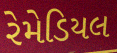
રેમેડિયલ